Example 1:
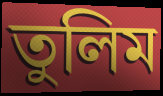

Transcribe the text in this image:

তুলিম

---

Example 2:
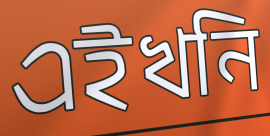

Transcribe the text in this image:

এইখনি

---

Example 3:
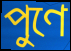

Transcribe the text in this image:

পুণে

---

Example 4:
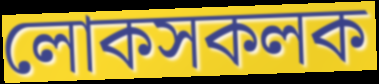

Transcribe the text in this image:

লোকসকলক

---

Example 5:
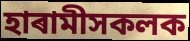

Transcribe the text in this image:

হাৰামীসকলক